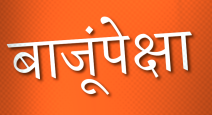
बाजूंपेक्षा